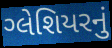
ગ્લેશિયરનું